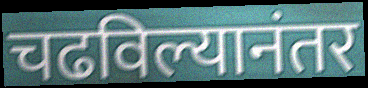
चढविल्यानंतर